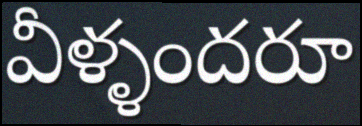
వీళ్ళందరూ